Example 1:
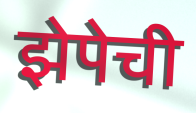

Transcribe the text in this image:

झेपेची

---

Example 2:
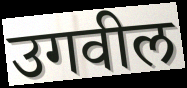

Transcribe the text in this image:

उगवील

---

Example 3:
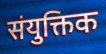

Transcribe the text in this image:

संयुक्तिक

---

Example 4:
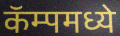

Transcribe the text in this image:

कॅम्पमध्ये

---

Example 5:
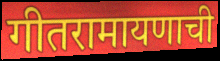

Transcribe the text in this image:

गीतरामायणाची